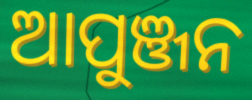
ଆପୁଞ୍ଜନ